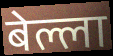
बेल्ला